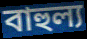
বাহুল্য